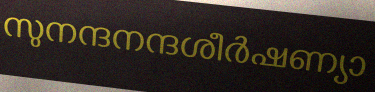
സുനന്ദനന്ദശീർഷണ്യാ